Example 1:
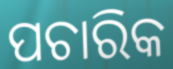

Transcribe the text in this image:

ପଚାରିକ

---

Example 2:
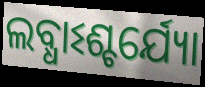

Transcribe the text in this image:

ଲବ୍ଧାଽଶ୍ଚର୍ଯ୍ୟୋ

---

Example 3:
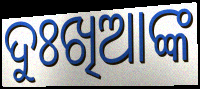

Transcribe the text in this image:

ଦୁଃଖିଆଙ୍କ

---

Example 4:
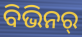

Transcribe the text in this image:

ବିଭିନର୍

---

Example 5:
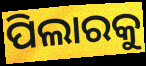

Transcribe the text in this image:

ପିଲାରକୁ